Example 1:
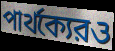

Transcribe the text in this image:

পার্থক্যেরও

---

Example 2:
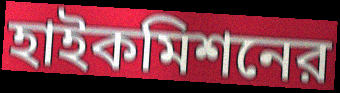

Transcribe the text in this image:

হাইকমিশনের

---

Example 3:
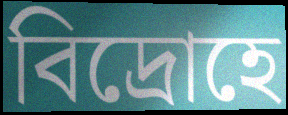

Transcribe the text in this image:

বিদ্রোহে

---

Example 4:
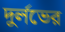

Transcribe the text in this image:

দুর্লভের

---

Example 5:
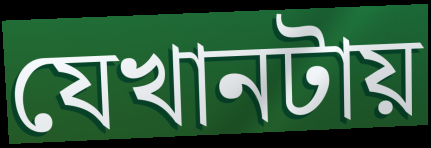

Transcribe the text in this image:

যেখানটায়